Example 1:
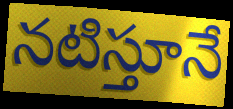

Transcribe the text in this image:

నటిస్తూనే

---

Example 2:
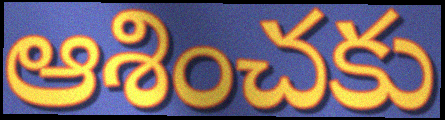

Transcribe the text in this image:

ఆశించకు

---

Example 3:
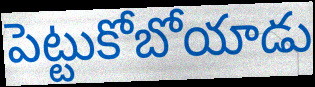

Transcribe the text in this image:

పెట్టుకోబోయాడు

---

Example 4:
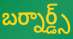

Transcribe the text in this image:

బర్నార్డ్స్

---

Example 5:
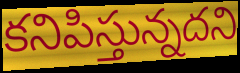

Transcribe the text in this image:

కనిపిస్తున్నదని